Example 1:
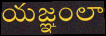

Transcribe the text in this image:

యజ్ఞంలా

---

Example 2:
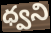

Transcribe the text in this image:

ధ్వని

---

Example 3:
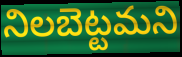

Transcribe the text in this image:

నిలబెట్టమని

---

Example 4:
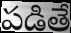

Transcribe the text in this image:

పడితే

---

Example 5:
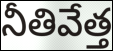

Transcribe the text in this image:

నీతివేత్త